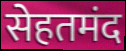
सेहतमंद